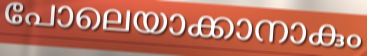
പോലെയാക്കാനാകും